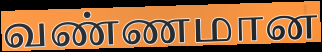
வண்ணமான